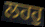
ਲਹਹੁ